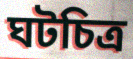
ঘটচিত্র